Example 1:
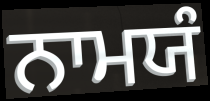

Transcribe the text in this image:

ਨਾਮਯੰ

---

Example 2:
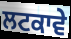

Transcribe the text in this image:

ਲਟਕਾਵੇ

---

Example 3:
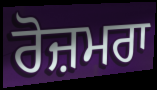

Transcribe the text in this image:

ਰੋਜ਼ਮਰਾ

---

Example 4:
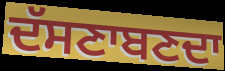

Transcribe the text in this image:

ਦੱਸਣਾਬਣਦਾ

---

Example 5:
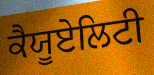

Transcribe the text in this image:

ਕੈਯੂਏਲਿਟੀ